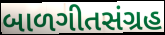
બાળગીતસંગ્રહ